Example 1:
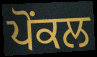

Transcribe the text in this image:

ਪੋਂਕਲ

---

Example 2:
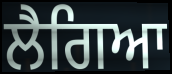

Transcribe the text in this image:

ਲੈਗਿਆ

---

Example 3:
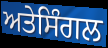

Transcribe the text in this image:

ਅਤੇਸਿੰਗਲ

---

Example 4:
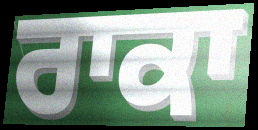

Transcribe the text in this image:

ਰਾਕਾ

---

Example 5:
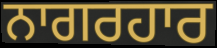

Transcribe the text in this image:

ਨਾਗਰਹਾਰ